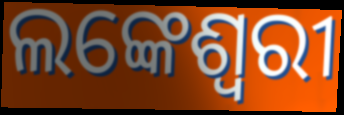
ଲଙ୍କେଶ୍ୱରୀ